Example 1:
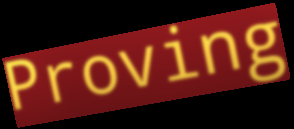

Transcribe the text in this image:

Proving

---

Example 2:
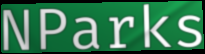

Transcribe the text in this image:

NParks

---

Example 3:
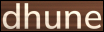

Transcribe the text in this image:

dhune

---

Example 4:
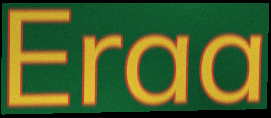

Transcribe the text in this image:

Eraa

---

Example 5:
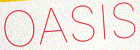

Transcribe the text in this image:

OASIS